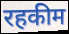
रहकीम